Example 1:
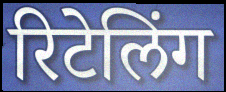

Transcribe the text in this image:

रिटेलिंग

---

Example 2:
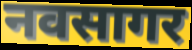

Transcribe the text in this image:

नवसागर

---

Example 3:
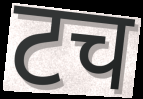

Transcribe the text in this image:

टच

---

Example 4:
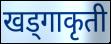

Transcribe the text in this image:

खड्गाकृती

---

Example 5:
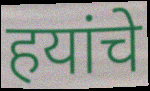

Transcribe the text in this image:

हयांचे